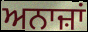
ਅਨਾਜ਼ਾਂ